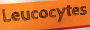
Leucocytes